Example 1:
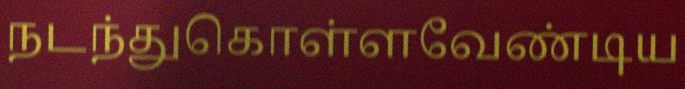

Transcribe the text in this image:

நடந்துகொள்ளவேண்டிய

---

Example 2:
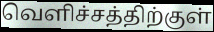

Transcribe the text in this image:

வெளிச்சத்திற்குள்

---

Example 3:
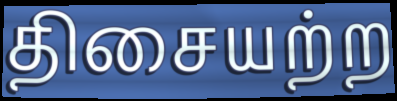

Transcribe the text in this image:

திசையற்ற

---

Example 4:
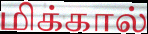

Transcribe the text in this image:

மிக்கால்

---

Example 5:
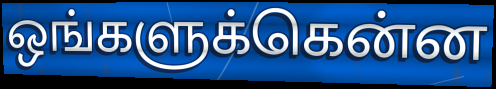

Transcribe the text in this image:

ஒங்களுக்கென்ன